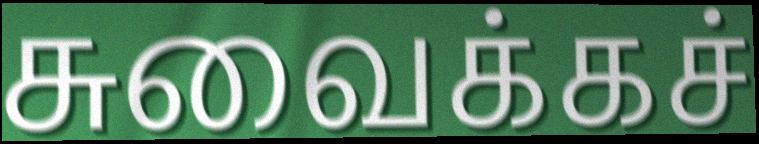
சுவைக்கச்